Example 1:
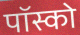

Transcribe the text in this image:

पॉस्‍को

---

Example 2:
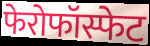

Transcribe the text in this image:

फेरोफॉस्फेट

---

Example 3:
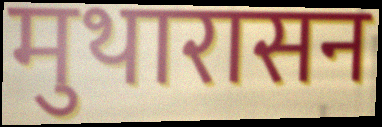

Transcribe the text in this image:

मुथारासन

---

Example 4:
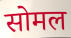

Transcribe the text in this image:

सोमल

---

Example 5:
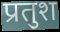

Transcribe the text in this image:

प्रतुश